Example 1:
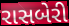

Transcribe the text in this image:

રાસબેરી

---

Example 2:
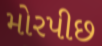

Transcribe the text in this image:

મોરપીછ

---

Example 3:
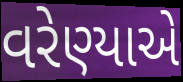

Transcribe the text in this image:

વરેણ્યાએ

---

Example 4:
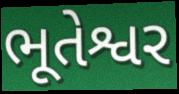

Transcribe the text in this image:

ભૂતેશ્વર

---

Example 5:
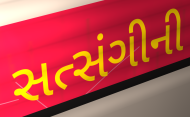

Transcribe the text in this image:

સત્સંગીની